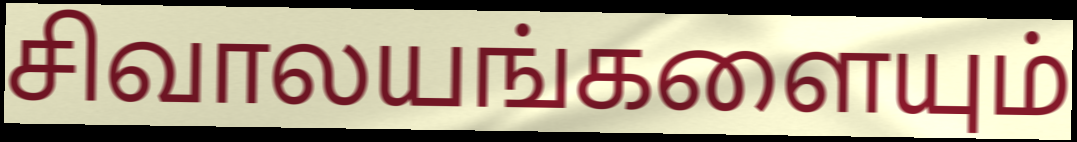
சிவாலயங்களையும்